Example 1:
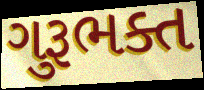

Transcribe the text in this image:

ગુરૂભક્ત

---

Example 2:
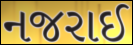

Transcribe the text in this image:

નજરાઈ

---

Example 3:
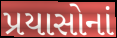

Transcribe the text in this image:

પ્રયાસોનાં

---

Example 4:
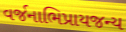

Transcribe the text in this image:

વર્જનાભિપ્રાયજન્ય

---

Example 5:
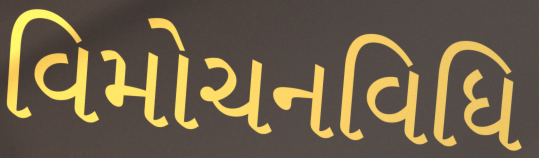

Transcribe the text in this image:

વિમોચનવિધિ